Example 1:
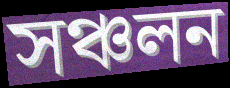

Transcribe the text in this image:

সঞ্চলন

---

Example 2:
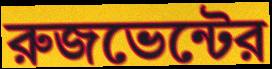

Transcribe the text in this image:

রুজভেন্টের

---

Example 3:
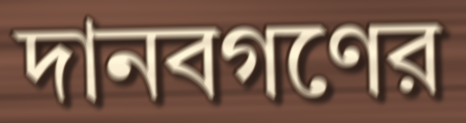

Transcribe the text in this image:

দানবগণের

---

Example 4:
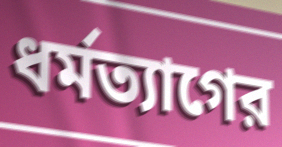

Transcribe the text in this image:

ধর্মত্যাগের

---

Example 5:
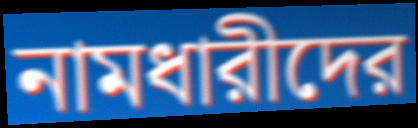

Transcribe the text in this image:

নামধারীদের